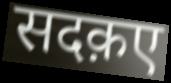
सदक़ए